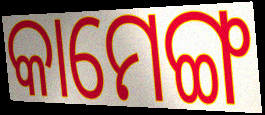
କାମେଙ୍ଗ